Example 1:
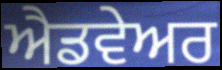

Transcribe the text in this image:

ਐਡਵੇਅਰ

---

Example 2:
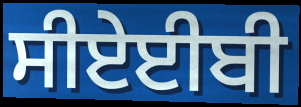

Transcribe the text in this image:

ਸੀਏਈਬੀ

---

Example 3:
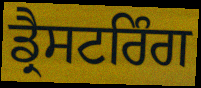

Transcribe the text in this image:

ਡ੍ਰੈਸਟਰਿੰਗ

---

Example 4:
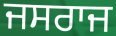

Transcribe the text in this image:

ਜਸਰਾਜ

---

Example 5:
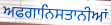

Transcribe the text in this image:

ਅਫਗਾਨਿਸਤਾਨੀਆਂ